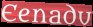
Eenadu